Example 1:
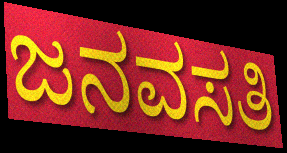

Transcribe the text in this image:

ಜನವಸತಿ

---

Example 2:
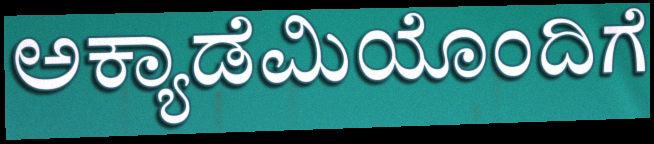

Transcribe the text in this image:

ಅಕ್ಯಾಡೆಮಿಯೊಂದಿಗೆ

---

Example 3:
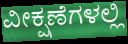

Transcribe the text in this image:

ವೀಕ್ಷಣೆಗಳಲ್ಲಿ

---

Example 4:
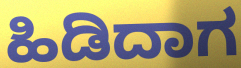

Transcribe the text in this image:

ಹಿಡಿದಾಗ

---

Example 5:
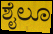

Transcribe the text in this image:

ಶೈಲೂ